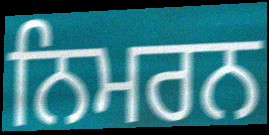
ਨਿਮਰਨ